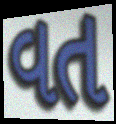
વત